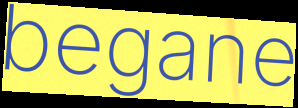
begane